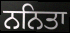
ਨਨਿਤਾ